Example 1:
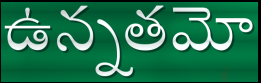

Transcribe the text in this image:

ఉన్నతమో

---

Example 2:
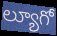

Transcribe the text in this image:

ల్యూగో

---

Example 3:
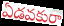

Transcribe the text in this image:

ఏడవకురా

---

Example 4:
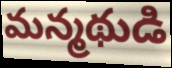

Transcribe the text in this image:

మన్మథుడి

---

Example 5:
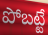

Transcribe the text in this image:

పోబట్టే